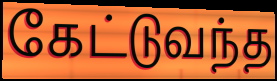
கேட்டுவந்த